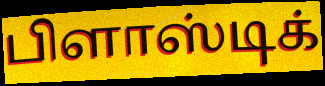
பிளாஸ்டிக்